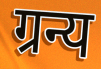
ग्रन्य